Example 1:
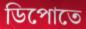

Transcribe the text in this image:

ডিপোতে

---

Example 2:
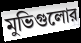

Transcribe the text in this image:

মুভিগুলোর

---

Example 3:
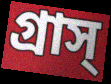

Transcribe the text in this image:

গ্রাস্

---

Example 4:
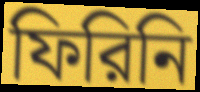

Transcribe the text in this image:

ফিরিনি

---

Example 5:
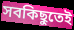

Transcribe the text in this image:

সবকিছুতেই